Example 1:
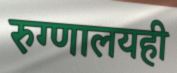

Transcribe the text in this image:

रुग्णालयही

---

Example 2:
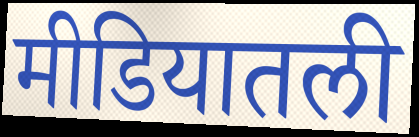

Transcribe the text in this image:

मीडियातली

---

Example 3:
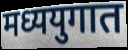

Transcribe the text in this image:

मध्ययुगात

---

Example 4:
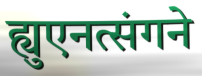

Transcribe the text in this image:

ह्युएनत्संगने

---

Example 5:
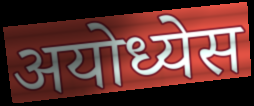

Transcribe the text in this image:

अयोध्येस